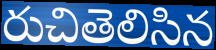
రుచితెలిసిన